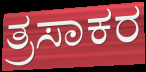
ತ್ರಸಾಕರ